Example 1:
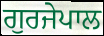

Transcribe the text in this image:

ਗੁਰਜੇਪਾਲ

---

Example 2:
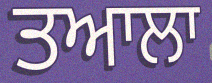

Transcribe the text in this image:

ਤਆਲਾ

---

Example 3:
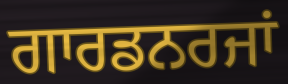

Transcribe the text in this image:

ਗਾਰਡਨਰਜਾਂ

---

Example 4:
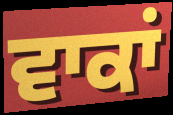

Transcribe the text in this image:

ਵਾਕਾਂ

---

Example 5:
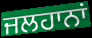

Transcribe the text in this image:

ਜਲਹਾਨਾਂ